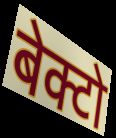
बेक्टो